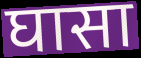
घासा